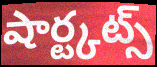
షార్ట్కట్స్